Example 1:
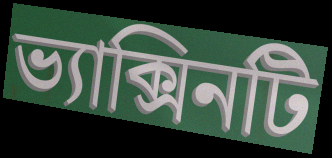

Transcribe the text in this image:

ভ্যাক্সিনটি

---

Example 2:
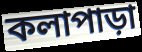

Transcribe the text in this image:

কলাপাড়া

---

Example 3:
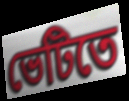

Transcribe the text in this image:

ভেটিতে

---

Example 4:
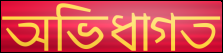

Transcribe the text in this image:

অভিধাগত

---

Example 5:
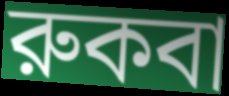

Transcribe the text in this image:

রুকবা